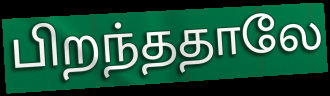
பிறந்ததாலே